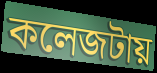
কলেজটায়